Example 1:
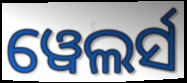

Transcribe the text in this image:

ୱେଲର୍ସ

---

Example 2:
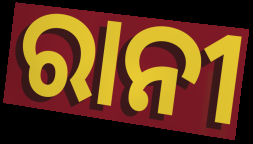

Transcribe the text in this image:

ରାନୀ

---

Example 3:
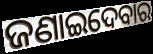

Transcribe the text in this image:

ଜଣାଇଦେବାର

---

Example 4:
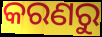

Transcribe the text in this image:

କରଣରୁ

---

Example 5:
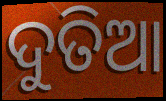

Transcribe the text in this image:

ଦୁତିଆ